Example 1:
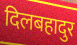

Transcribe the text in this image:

दिलबहादुर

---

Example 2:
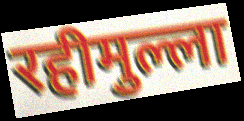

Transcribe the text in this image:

रहीमुल्ला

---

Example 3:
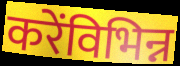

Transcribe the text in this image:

करेंविभिन्न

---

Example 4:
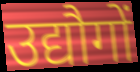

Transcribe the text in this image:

उद्यौगों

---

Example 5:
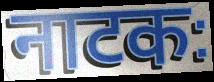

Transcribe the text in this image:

नाटकः